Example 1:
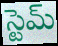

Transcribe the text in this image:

స్టెమ్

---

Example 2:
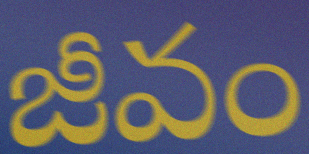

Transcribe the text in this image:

జీవం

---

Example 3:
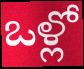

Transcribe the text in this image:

ఒళ్లో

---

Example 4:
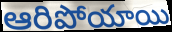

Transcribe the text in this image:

ఆరిపోయాయి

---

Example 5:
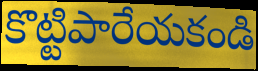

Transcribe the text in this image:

కొట్టిపారేయకండి